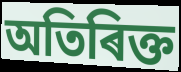
অতিৰিক্ত